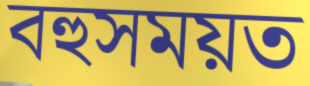
বহুসময়ত